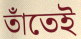
তাঁতেই